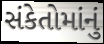
સંકેતોમાંનું